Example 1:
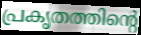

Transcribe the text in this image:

പ്രകൃതത്തിന്റെ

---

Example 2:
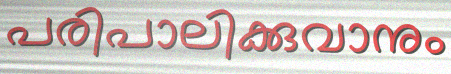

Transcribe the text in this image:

പരിപാലിക്കുവാനും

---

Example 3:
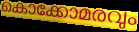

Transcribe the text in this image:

കൊക്കോമരവും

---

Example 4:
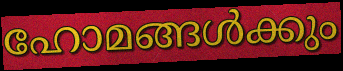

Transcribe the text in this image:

ഹോമങ്ങൾക്കും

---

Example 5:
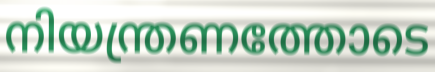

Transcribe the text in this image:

നിയന്ത്രണത്തോടെ